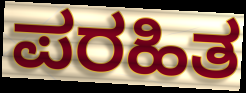
ಪರಹಿತ